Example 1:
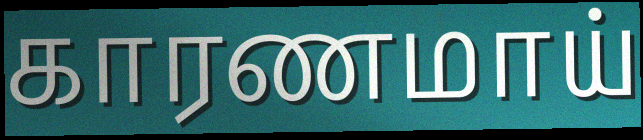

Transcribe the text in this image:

காரணமாய்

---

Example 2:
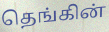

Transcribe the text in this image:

தெங்கின்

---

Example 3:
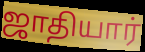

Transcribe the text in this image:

ஜாதியார்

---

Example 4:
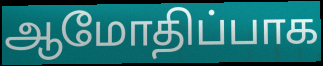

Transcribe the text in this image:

ஆமோதிப்பாக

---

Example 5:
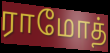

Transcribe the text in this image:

ராமோத்